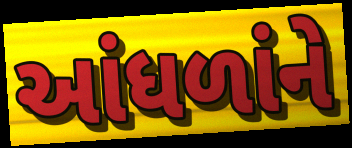
આંધળાંને